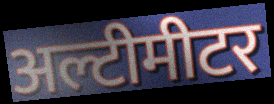
अल्टीमीटर